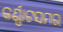
କର୍ଣ୍ଣାଟସମର